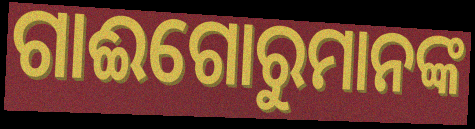
ଗାଈଗୋରୁମାନଙ୍କ